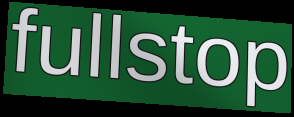
fullstop